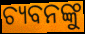
ଚ୍ୟବନଙ୍କୁ